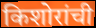
किशोरांची